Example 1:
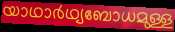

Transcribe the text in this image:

യാഥാർഥ്യബോധമുള്ള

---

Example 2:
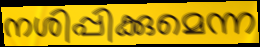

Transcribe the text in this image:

നശിപ്പിക്കുമെന്ന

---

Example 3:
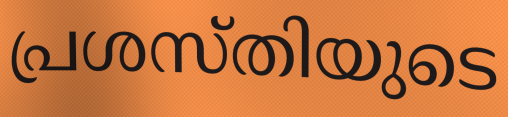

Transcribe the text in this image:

പ്രശസ്തിയുടെ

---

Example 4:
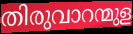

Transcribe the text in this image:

തിരുവാറന്മുള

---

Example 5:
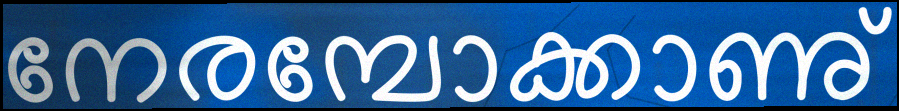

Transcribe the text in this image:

നേരമ്പോക്കാണു്